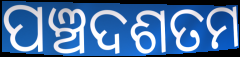
ପଞ୍ଚଦଶତମ